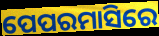
ପେପରମାସିରେ